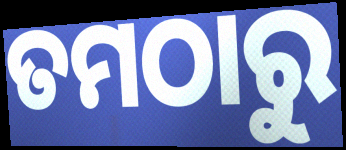
ତମଠାରୁ